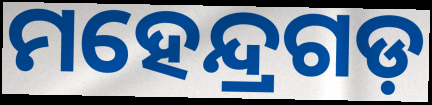
ମହେନ୍ଦ୍ରଗଡ଼